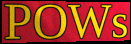
POWs